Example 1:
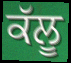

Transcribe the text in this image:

ਕੱਲੂ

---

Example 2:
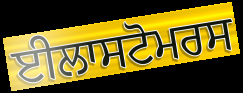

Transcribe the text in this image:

ਈਲਾਸਟੋਮਰਸ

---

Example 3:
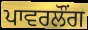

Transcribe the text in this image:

ਪਾਵਰਲੌਂਗ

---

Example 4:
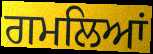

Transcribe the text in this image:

ਗਮਲਿਆਂ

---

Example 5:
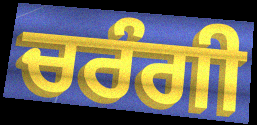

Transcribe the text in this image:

ਚਰੰਗੀ